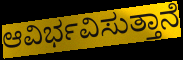
ಆವಿರ್ಭವಿಸುತ್ತಾನೆ